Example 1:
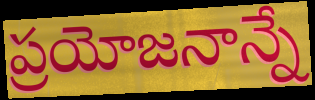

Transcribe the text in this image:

ప్రయోజనాన్నే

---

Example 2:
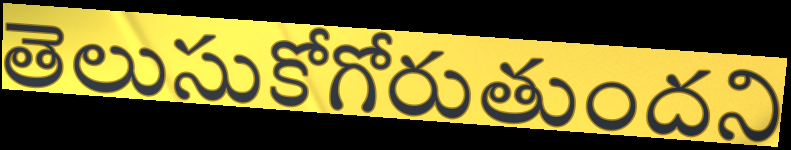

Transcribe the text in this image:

తెలుసుకోగోరుతుందని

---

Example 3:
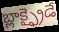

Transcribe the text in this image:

బ్లాక్ఫ్రైడే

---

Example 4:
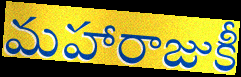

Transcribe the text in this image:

మహారాజుకీ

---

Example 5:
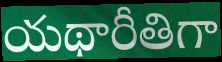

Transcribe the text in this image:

యథారీతిగా